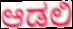
ಆಡಲಿ